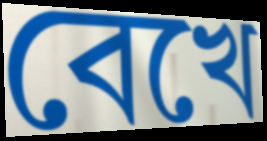
বেখে